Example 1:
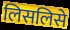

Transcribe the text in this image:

लिसलिसे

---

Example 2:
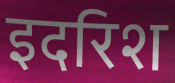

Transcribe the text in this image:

इदरिश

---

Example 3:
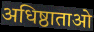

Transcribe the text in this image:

अधिष्ठाताओ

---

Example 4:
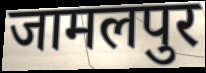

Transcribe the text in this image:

जामलपुर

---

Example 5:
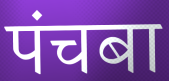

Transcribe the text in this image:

पंचबा